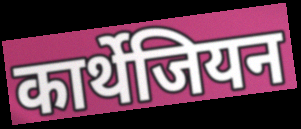
कार्थेजियन